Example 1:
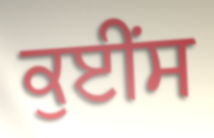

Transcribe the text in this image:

ਕੁਈਂਸ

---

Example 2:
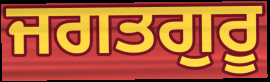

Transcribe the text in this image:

ਜਗਤਗੁਰੂ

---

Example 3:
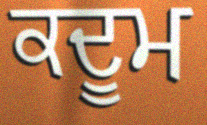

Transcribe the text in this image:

ਕਦੂਮ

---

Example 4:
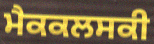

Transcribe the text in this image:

ਮੈਕਕਲਸਕੀ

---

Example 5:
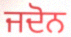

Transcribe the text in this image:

ਜਦੋਨ